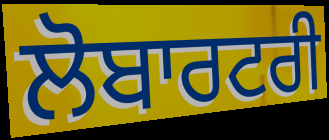
ਲੋਬਾਰਟਰੀ